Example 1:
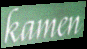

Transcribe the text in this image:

kamen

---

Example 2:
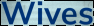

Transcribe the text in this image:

Wives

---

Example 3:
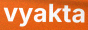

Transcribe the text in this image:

vyakta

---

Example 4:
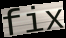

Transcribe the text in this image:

fix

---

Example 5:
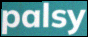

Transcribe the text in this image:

palsy